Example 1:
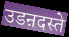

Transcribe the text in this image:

उडऩदस्ते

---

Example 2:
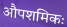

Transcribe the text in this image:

औपशमिकः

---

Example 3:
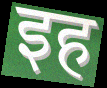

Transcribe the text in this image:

इह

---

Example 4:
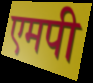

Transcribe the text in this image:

एमपी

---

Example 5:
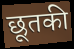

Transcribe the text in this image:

छूतकी